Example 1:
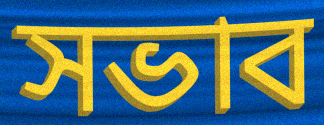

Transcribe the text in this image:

সভাব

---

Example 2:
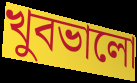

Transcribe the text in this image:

খুবভালো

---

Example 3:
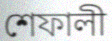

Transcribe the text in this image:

শেফালী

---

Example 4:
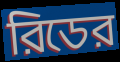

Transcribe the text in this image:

রিডের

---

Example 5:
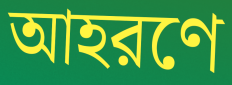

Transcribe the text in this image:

আহরণে